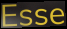
Esse